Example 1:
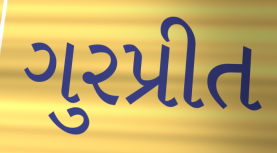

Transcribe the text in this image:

ગુરપ્રીત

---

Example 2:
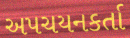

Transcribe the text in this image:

અપચયનકર્તા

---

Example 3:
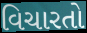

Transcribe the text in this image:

વિચારતો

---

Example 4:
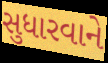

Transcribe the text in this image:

સુધારવાને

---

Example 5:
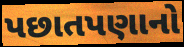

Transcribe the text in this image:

પછાતપણાનો